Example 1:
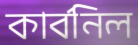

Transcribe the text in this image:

কার্বনিল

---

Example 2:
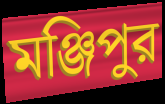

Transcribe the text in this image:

মঞ্জিপুর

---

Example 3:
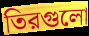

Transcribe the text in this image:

তিরগুলো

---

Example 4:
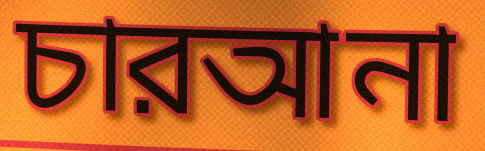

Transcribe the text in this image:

চারআনা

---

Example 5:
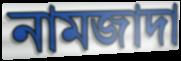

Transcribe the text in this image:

নামজাদা